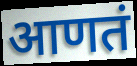
आणतं